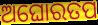
ଅଘୋରତପ